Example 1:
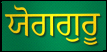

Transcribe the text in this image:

ਯੋਗਗੁਰੂ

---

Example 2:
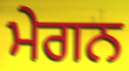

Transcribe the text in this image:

ਮੇਗਨ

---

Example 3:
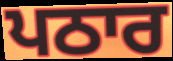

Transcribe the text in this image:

ਪਠਾਰ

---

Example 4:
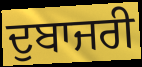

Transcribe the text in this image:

ਦੁਬਾਜਰੀ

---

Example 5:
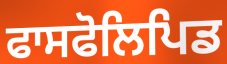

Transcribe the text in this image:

ਫਾਸਫੋਲਿਪਿਡ